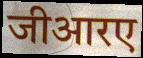
जीआरए